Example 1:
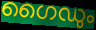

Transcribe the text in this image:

ഗൈഡും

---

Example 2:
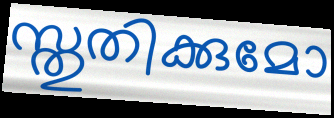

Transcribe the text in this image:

സ്തുതിക്കുമോ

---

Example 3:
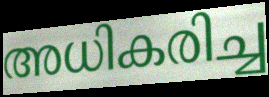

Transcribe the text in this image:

അധികരിച്ച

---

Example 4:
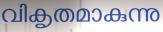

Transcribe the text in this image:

വികൃതമാകുന്നു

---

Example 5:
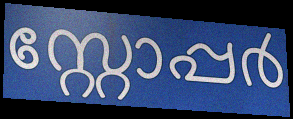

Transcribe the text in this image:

സ്റ്റോപ്പർ